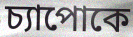
চ্যাপোকে